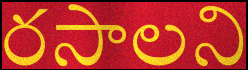
రసాలని